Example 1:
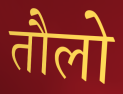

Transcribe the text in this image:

तौलो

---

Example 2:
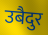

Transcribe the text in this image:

उबैदुर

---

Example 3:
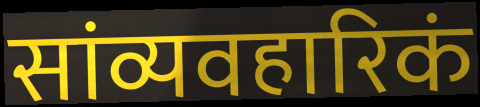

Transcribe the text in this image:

सांव्यवहारिकं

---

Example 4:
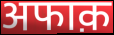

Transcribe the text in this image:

अफाक़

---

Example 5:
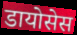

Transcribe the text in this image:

डायोसेस